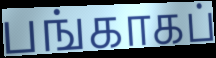
பங்காகப்